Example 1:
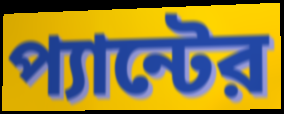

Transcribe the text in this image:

প্যান্টের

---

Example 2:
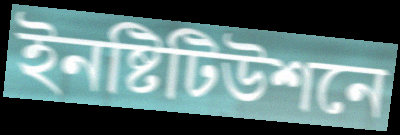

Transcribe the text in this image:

ইনষ্টিটিউশনে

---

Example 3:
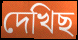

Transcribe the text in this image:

দেখিছ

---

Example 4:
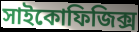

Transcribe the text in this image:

সাইকোফিজিক্স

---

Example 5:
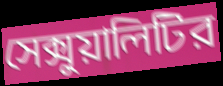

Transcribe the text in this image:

সেক্সুয়ালিটির